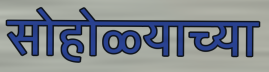
सोहोळ्याच्या